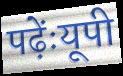
पढ़ेंःयूपी